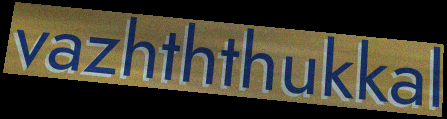
vazhththukkal